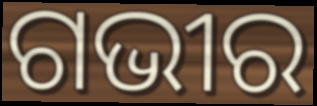
ଗଭୀର